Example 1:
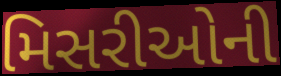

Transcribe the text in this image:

મિસરીઓની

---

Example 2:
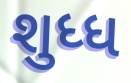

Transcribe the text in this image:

શુધ્ધ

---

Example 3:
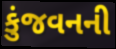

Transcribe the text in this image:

કુંજવનની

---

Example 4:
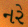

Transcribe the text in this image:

નરે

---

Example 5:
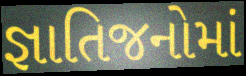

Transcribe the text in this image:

જ્ઞાતિજનોમાં